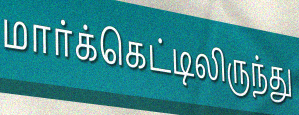
மார்க்கெட்டிலிருந்து